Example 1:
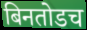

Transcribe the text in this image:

बिनतोडच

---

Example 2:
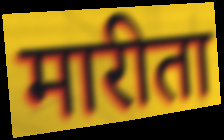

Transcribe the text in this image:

मारीता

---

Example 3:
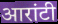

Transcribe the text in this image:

आरांटी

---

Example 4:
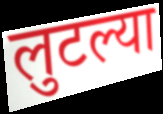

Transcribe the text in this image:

लुटल्या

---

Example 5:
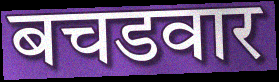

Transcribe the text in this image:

बचडवार